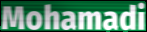
Mohamadi